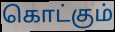
கொட்கும்